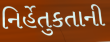
નિર્હેતુકતાની